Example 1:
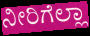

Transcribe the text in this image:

ನೀರಿಗೆಲ್ಲಾ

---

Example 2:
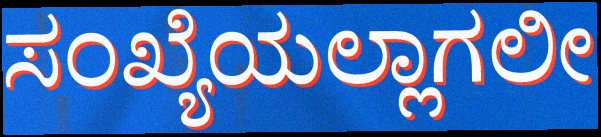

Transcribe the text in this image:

ಸಂಖ್ಯೆಯಲ್ಲಾಗಲೀ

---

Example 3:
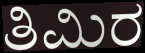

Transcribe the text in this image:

ತಿಮಿರ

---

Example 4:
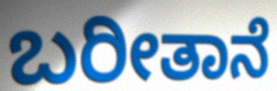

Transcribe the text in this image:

ಬರೀತಾನೆ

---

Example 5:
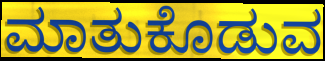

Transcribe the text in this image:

ಮಾತುಕೊಡುವ